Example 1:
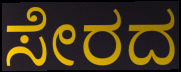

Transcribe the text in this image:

ಸೇರದ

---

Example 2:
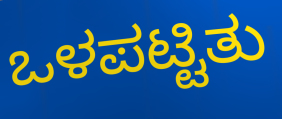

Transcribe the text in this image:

ಒಳಪಟ್ಟಿತು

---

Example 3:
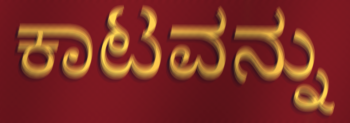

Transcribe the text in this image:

ಕಾಟವನ್ನು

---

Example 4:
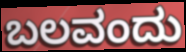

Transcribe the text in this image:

ಬಲವಂದು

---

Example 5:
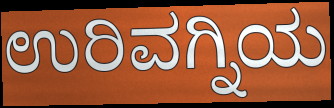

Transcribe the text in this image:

ಉರಿವಗ್ನಿಯ